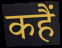
कहैं